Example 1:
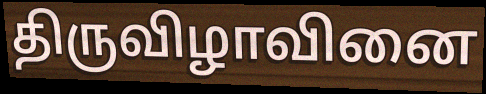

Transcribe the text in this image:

திருவிழாவினை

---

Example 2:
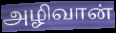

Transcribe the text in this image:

அழிவான்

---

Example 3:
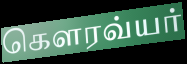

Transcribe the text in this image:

கௌரவ்யர்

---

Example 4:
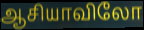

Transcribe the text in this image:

ஆசியாவிலோ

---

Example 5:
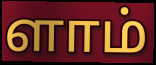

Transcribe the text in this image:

ளாம்